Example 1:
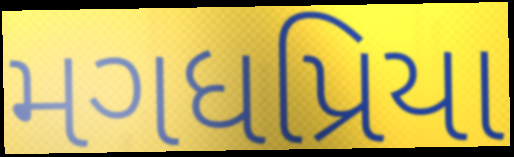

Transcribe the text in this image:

મગધપ્રિયા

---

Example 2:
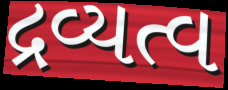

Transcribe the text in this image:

દ્રવ્યત્વ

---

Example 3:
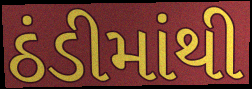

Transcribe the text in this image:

ઠંડીમાંથી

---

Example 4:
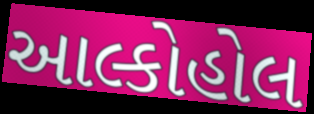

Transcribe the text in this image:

આલ્કોહોલ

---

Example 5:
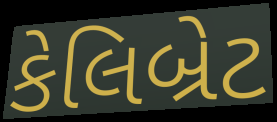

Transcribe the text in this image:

કેલિબ્રેટ